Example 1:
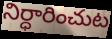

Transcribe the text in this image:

నిర్ధారించుట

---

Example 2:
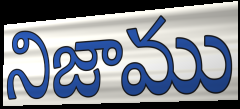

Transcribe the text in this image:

నిజాము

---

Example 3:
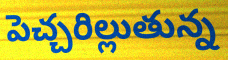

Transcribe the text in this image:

పెచ్చరిల్లుతున్న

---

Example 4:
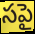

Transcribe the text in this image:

సపై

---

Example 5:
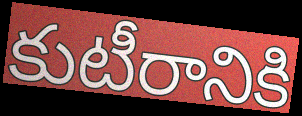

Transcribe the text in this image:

కుటీరానికి